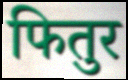
फितुर